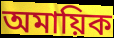
অমায়িক